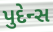
પુદેન્સ